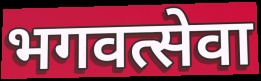
भगवत्सेवा